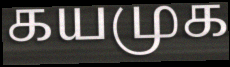
கயமுக